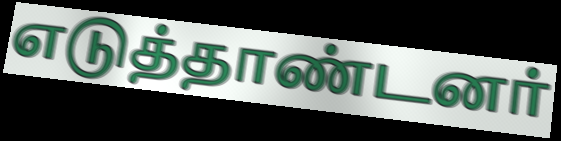
எடுத்தாண்டனர்